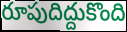
రూపుదిద్దుకొంది